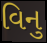
વિનુ